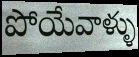
పోయేవాళ్ళు